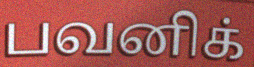
பவனிக்